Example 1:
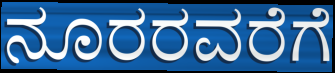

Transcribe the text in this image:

ನೂರರವರೆಗೆ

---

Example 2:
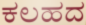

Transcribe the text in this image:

ಕಲಹದ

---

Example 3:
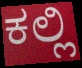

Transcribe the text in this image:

ಕಲ್ಲಿ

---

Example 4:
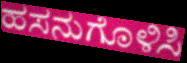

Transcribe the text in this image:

ಹಸನುಗೊಳಿಸಿ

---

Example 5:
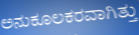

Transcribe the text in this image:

ಅನುಕೂಲಕರವಾಗಿತ್ತು